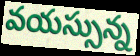
వయస్సున్న